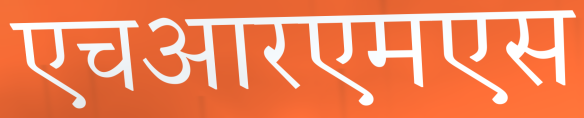
एचआरएमएस